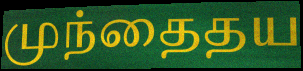
முந்தைதய